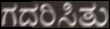
ಗದರಿಸಿತು